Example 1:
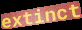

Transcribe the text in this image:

extinct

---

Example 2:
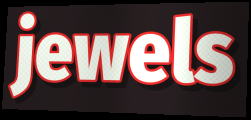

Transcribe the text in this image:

jewels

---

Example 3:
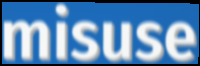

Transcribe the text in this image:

misuse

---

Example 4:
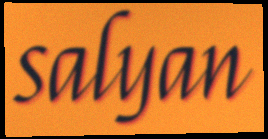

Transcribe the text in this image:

salyan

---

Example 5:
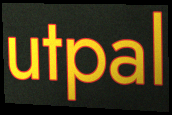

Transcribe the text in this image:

utpal